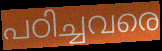
പഠിച്ചവരെ